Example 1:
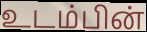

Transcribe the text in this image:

உடம்பின்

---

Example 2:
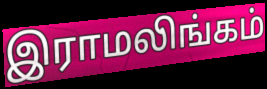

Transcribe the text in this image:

இராமலிங்கம்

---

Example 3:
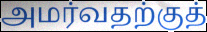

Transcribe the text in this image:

அமர்வதற்குத்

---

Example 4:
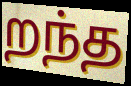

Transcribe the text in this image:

றந்த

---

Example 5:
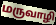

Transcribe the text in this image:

மருவாழி